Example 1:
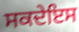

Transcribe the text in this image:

ਸਕਦੇਇਸ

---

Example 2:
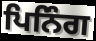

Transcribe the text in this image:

ਪਿਨਿੰਗ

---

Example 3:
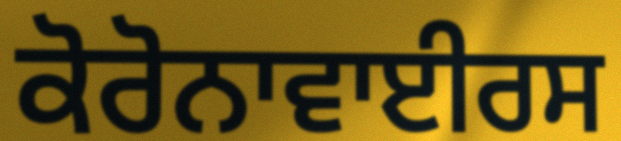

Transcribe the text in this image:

ਕੋਰੋਨਾਵਾਈਰਸ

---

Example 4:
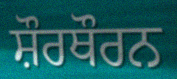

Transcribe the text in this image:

ਸ਼ੌਰਥੌਰਨ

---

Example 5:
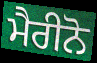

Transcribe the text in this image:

ਮੈਰੀਨੋ